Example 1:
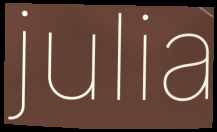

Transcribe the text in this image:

julia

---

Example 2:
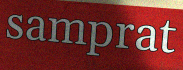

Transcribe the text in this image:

samprat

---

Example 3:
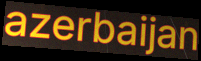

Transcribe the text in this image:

azerbaijan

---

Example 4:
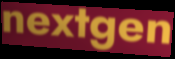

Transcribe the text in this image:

nextgen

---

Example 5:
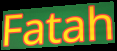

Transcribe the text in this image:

Fatah